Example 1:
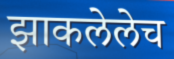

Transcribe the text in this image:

झाकलेलेच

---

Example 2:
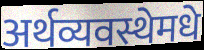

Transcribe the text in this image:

अर्थव्यवस्थेमधे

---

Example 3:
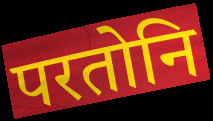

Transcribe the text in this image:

परतोनि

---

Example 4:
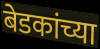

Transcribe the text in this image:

बेडकांच्या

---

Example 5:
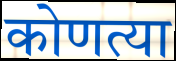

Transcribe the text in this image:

कोणत्या